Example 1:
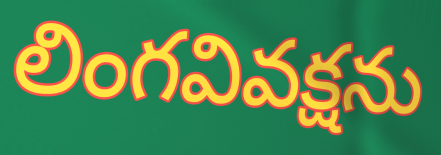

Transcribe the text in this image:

లింగవివక్షను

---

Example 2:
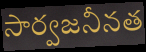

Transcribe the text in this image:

సార్వజనీనత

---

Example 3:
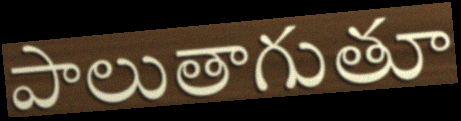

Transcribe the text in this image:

పాలుతాగుతూ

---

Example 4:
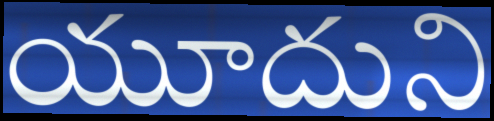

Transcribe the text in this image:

యూదుని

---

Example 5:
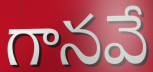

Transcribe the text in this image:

గానవే